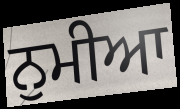
ਨੁਮੀਆ